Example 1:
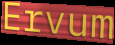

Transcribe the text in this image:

Ervum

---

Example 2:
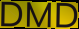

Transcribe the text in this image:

DMD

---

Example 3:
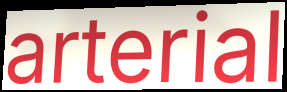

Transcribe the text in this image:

arterial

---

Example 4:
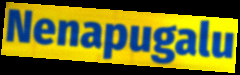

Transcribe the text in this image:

Nenapugalu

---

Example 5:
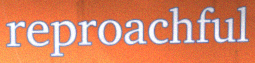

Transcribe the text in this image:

reproachful